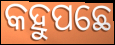
କହୁପଛେ